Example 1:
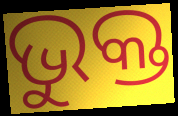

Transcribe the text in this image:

ଭୁକ୍ତ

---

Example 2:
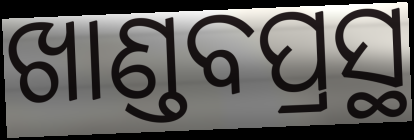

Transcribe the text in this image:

ଖାଣ୍ଡବପ୍ରସ୍ଥ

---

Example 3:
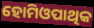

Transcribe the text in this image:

ହୋମିଓପାଥିକ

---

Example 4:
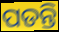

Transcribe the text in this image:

ପଡନ୍ତି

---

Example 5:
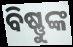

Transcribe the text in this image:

ବିଷ୍ଣୁଙ୍କ